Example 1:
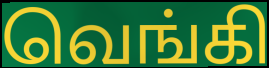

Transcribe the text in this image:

வெங்கி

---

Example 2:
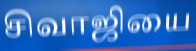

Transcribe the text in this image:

சிவாஜியை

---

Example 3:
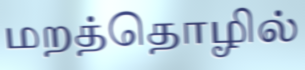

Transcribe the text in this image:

மறத்தொழில்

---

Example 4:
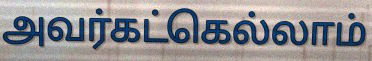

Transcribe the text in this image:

அவர்கட்கெல்லாம்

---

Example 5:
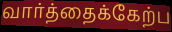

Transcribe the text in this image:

வார்த்தைக்கேற்ப